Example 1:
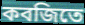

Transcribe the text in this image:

কবজিতে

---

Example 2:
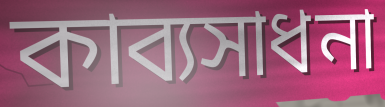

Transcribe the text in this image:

কাব্যসাধনা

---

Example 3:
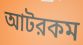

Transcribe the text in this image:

আটরকম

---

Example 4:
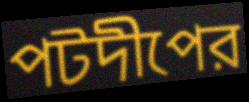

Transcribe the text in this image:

পটদীপের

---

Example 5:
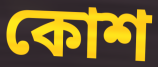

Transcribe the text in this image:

কোশ